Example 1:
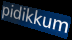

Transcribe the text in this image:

pidikkum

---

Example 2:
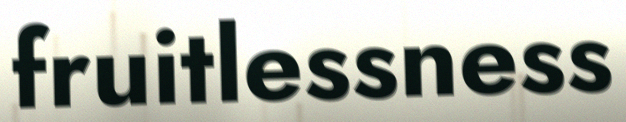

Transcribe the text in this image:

fruitlessness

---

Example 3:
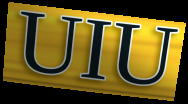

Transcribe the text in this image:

UIU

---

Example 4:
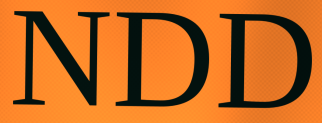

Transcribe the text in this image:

NDD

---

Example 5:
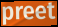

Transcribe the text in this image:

preet